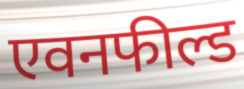
एवनफील्ड